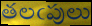
తలఁపులు